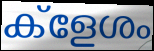
ക്ളേശം